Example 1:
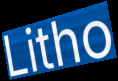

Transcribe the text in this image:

Litho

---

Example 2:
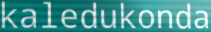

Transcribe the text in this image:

kaledukonda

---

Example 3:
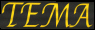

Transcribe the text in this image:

TEMA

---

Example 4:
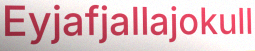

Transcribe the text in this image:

Eyjafjallajokull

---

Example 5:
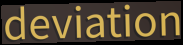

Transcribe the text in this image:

deviation